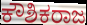
ಕೌಶಿಕರಾಜ